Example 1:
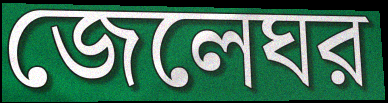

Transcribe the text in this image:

জেলেঘর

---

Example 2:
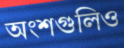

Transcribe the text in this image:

অংশগুলিও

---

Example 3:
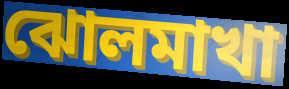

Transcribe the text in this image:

ঝোলমাখা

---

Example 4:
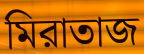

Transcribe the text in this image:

মিরাতাজ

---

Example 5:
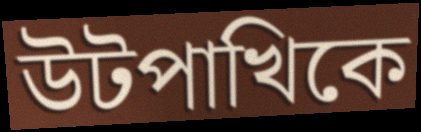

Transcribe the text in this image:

উটপাখিকে